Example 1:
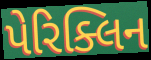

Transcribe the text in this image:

પેરિક્લિન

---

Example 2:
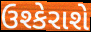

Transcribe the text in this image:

ઉશ્કેરાશે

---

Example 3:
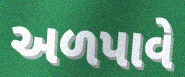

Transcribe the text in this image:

અળપાવે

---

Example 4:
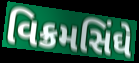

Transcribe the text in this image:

વિક્રમસિંઘે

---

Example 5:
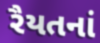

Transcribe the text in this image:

રૈયતનાં